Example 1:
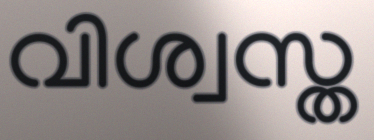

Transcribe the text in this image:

വിശ്വസ്ത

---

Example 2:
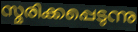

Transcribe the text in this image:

സ്മരിക്കപ്പെടുന്നു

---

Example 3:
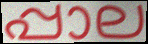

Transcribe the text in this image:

പ്പാല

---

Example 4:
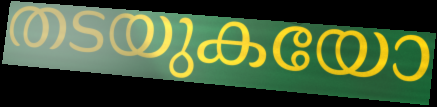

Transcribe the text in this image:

തടയുകയോ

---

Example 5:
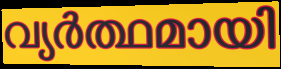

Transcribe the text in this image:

വ്യർത്ഥമായി